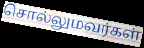
சொல்லுமவர்கள்